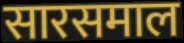
सारसमाल